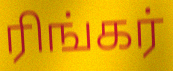
ரிங்கர்